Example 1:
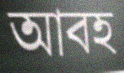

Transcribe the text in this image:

আবহ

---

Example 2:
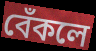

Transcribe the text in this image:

বেঁকলে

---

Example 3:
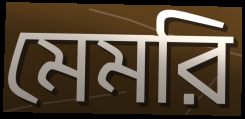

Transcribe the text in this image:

মেমরি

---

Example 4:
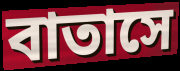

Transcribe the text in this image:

বাতাসে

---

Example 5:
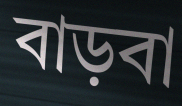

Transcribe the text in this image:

বাড়বা